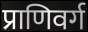
प्राणिवर्ग